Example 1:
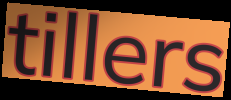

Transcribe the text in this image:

tillers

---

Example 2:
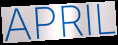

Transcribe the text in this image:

APRIL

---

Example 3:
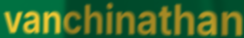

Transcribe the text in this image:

vanchinathan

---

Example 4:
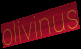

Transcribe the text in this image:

olivinus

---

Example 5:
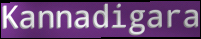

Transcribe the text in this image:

Kannadigara